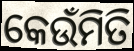
କେଉଁମିତି